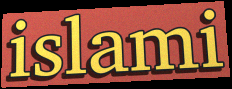
islami